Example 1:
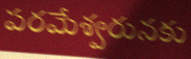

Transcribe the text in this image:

పరమేశ్వరునకు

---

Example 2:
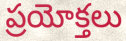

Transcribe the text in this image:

ప్రయోక్తలు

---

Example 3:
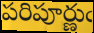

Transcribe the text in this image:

పరిపూర్ణుఁ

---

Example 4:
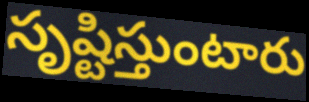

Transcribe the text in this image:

సృష్టిస్తుంటారు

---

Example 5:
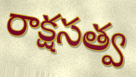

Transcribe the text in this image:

రాక్షసత్వ